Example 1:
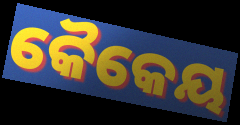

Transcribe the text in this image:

କୈକେୟ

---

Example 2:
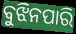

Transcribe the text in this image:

ବୁଝିନପାରି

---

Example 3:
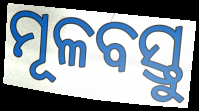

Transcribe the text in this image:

ମୂଳବସ୍ତୁ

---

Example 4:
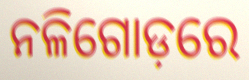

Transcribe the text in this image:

ନଳିଗୋଡ଼ରେ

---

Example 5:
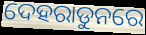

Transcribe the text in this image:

ଦେହରାଡୁନରେ